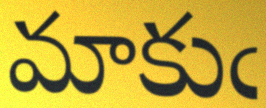
మాకుఁ